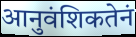
आनुवंशिकतेनं